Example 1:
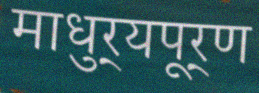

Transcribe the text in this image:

माधुर्यपूर्ण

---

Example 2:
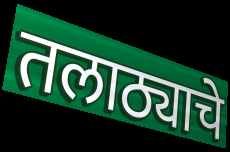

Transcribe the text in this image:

तलाठ्याचे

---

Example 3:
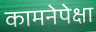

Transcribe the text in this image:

कामनेपेक्षा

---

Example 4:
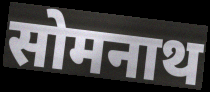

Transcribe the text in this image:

सोमनाथ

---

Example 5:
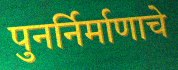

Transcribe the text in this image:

पुनर्निर्माणाचे